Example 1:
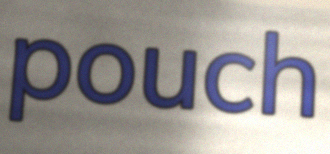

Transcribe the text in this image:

pouch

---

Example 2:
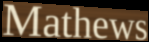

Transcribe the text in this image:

Mathews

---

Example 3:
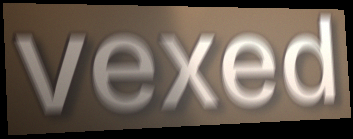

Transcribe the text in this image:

vexed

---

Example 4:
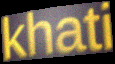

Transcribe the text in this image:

khati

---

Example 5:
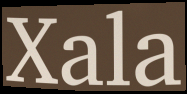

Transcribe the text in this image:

Xala